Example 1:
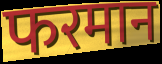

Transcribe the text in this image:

फरमान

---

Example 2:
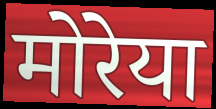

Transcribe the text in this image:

मोरेया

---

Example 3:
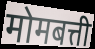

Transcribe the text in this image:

मोमबत्ती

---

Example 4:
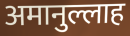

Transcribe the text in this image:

अमानुल्लाह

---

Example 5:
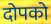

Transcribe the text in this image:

दोपको